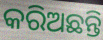
କରିଅଛନ୍ତି